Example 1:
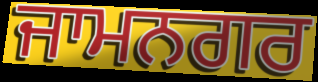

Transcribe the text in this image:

ਜਾਮਨਗਰ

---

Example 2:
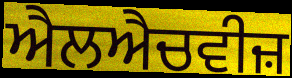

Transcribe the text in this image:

ਐਲਐਚਵੀਜ਼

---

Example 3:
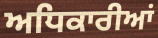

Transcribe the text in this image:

ਅਧਿਕਾਰੀਆਂ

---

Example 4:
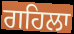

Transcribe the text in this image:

ਗਹਿਲਾ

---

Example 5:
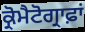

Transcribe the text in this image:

ਕ੍ਰੋਮੈਟੋਗ੍ਰਾਫ਼ਾਂ